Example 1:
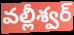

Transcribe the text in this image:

వల్లీశ్వర్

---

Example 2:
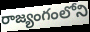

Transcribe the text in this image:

రాజ్యంగంలోని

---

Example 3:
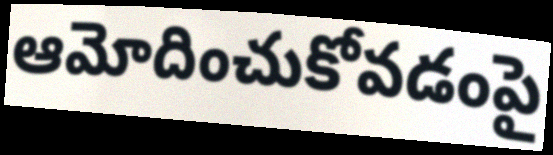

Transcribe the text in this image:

ఆమోదించుకోవడంపై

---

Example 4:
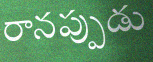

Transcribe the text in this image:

రానప్పుడు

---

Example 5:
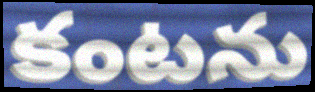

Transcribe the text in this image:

కంటను